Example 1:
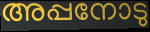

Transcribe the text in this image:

അപ്പനോടു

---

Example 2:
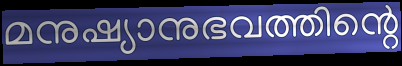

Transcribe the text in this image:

മനുഷ്യാനുഭവത്തിന്റെ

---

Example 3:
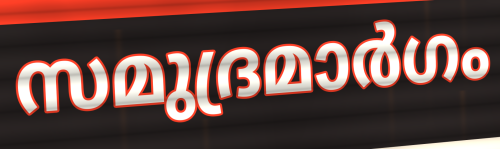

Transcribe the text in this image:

സമുദ്രമാർഗം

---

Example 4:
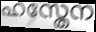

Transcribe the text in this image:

ഹസ്തേന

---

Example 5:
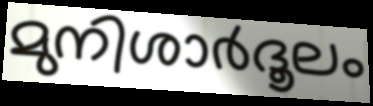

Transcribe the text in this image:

മുനിശാർദൂലം